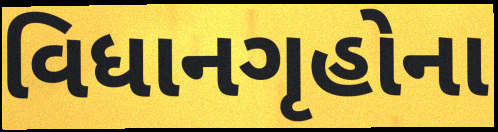
વિધાનગૃહોના